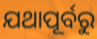
ଯଥାପୂର୍ବରୁ